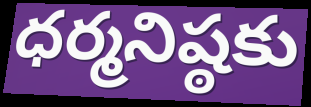
ధర్మనిష్ఠకు